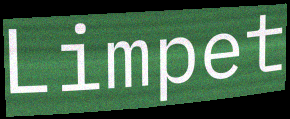
Limpet